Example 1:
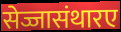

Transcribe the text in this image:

सेज्जासंथारए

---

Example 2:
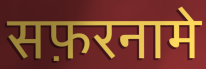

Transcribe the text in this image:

सफ़रनामे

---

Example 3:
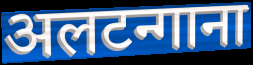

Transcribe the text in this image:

अलटन्गाना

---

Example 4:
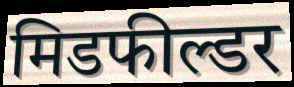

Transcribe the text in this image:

मिडफील्डर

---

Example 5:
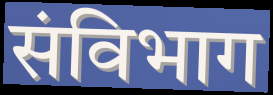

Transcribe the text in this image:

संविभाग